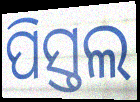
ପିସ୍ତଲ